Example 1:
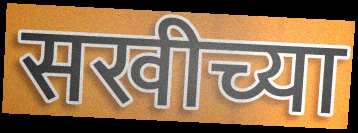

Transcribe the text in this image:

सखीच्या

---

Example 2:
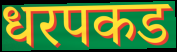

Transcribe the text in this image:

धरपकड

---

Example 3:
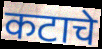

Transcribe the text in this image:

कटाचे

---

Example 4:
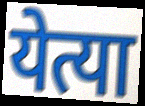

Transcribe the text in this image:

येत्या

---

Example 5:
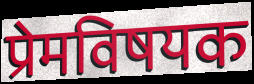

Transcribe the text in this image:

प्रेमविषयक